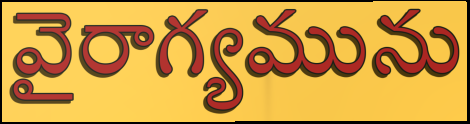
వైరాగ్యమును